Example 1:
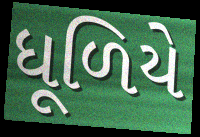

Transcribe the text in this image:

ધૂળિયે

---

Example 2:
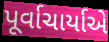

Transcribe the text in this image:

પૂર્વાચાર્યાએ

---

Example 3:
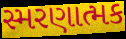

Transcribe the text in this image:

સ્મરણાત્મક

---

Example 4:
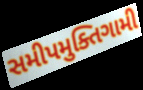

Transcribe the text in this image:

સમીપમુક્તિગામી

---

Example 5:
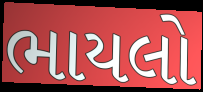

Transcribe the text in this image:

ભાયલો